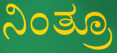
ನಿಂತ್ರೂ